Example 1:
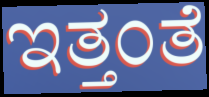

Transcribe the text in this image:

ಇತ್ತಂತೆ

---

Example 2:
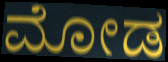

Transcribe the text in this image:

ಮೋಡ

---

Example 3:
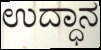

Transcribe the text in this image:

ಉದ್ಧಾನ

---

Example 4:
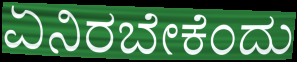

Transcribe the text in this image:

ಏನಿರಬೇಕೆಂದು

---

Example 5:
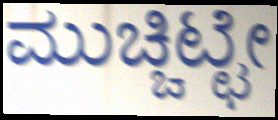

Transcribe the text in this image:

ಮುಚ್ಚಿಟ್ಟೇ